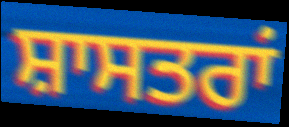
ਸ਼ਾਸਤਰਾਂ